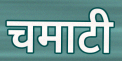
चमाटी